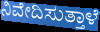
ನಿವೇದಿಸುತ್ತಾಳೆ